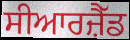
ਸੀਆਰਜ਼ੈੱਡ